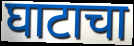
घाटाचा